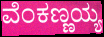
ವೆಂಕಣ್ಣಯ್ಯ